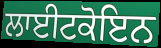
ਲਾਈਟਕੋਇਨ